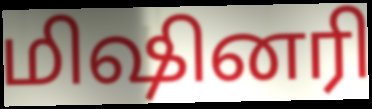
மிஷினரி